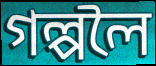
গল্পলৈ